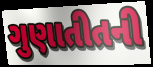
ગુણાતીતની